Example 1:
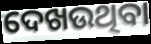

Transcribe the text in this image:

ଦେଖଉଥିବା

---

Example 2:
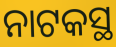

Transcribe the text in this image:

ନାଟକସ୍ଥ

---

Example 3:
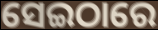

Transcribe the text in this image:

ସେଇଠାରେ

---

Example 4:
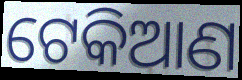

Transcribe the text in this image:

ଟେକିଆଣ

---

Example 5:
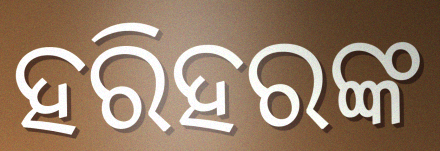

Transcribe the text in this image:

ହରିହରଙ୍କ